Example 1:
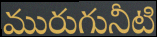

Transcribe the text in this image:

మురుగునీటి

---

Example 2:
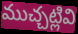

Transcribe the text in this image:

ముచ్చట్లివి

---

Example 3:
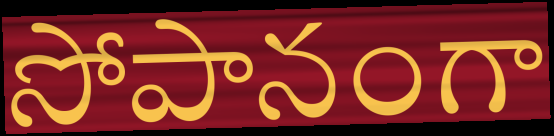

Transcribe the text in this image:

సోపానంగా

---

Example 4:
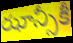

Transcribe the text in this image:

ఝాన్సీకీ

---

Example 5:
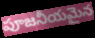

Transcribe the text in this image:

పూజనీయమైన